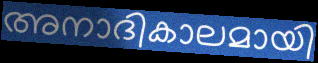
അനാദികാലമായി